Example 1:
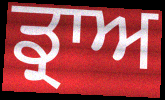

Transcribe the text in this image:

ਡ੍ਰਾਅ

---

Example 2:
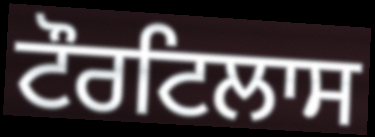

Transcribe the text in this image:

ਟੌਰਟਿਲਾਸ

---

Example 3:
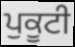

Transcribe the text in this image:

ਪੁਕੂਟੀ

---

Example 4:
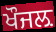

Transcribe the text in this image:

ਖੌਜਲ਼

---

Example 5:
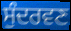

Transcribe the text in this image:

ਸੁੰਦਰਵਣ